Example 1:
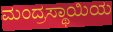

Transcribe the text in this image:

ಮಂದ್ರಸ್ಥಾಯಿಯ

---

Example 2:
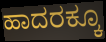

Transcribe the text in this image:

ಹಾದರಕ್ಕೂ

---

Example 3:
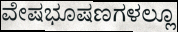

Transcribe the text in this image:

ವೇಷಭೂಷಣಗಳಲ್ಲೂ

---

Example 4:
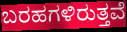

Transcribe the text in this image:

ಬರಹಗಳಿರುತ್ತವೆ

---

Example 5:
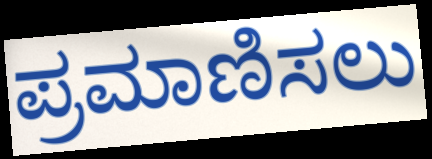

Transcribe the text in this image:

ಪ್ರಮಾಣಿಸಲು